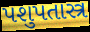
પશુપતાસ્ત્ર